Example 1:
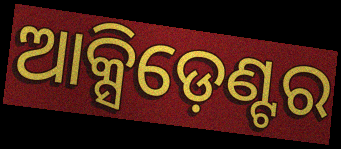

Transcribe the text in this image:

ଆକ୍ସିଡ଼େଣ୍ଟର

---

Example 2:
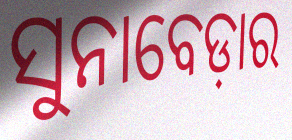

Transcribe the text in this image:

ସୁନାବେଡ଼ାର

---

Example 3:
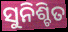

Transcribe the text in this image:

ସୁନିଶ୍ଚିତ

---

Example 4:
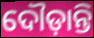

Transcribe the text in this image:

ଦୌଡ଼ାନ୍ତି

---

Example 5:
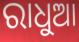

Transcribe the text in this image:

ରାଧୁଆ